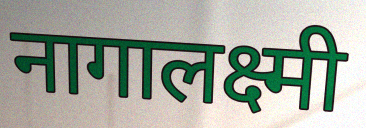
नागालक्ष्मी